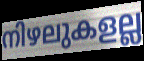
നിഴലുകളല്ല